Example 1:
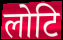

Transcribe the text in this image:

लोटि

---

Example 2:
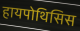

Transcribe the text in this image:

हायपोथिसिस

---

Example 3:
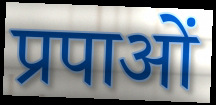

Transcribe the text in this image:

प्रपाओं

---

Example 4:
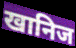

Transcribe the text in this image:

खानिज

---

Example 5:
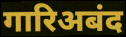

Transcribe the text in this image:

गारिअबंद